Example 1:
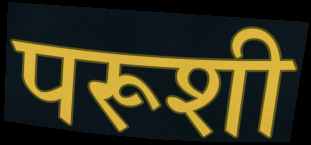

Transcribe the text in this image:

परूशी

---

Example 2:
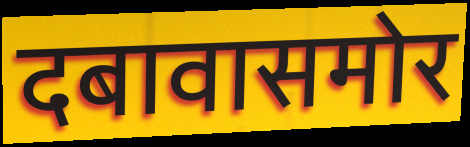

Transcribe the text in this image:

दबावासमोर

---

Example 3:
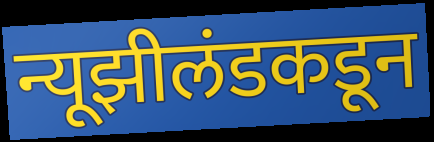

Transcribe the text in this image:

न्यूझीलंडकडून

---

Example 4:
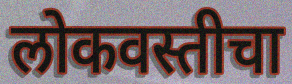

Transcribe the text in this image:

लोकवस्तीचा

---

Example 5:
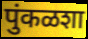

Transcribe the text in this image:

पुंकळशा